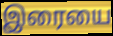
இரையை